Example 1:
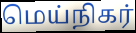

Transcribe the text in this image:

மெய்நிகர்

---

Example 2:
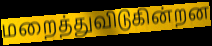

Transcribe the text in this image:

மறைத்துவிடுகின்றன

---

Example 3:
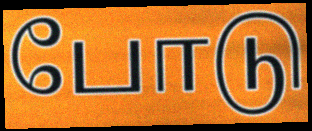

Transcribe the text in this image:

போடு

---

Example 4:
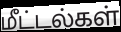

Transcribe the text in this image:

மீட்டல்கள்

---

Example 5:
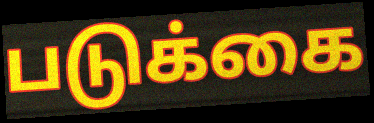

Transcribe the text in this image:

படுக்கை